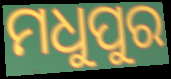
ମଧୁପୁର